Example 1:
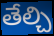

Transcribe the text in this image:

తేల్చి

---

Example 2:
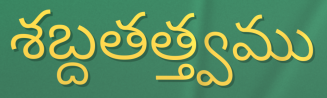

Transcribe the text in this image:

శబ్దతత్త్వము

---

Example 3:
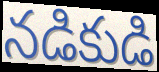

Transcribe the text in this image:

నడికుడి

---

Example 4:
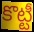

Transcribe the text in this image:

కొట్టీ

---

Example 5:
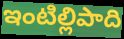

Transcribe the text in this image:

ఇంటిల్లిపాది